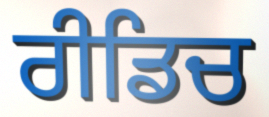
ਰੀਡਿਚ